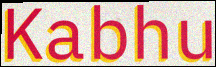
Kabhu